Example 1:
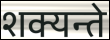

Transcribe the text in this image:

शक्यन्ते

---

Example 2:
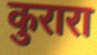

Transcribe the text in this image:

कुरारा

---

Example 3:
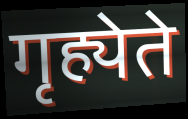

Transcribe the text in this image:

गृह्येते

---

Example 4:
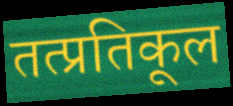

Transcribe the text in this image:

तत्प्रतिकूल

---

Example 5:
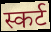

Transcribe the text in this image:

स्कर्ट